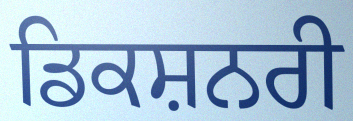
ਡਿਕਸ਼ਨਰੀ